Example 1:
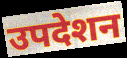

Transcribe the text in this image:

उपदेशन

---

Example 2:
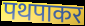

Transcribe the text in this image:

पथपाकर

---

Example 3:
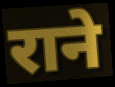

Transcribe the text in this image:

राने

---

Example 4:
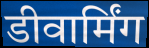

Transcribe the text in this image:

डीवार्मिंग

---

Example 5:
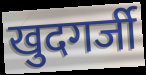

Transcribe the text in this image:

खुदगर्जी